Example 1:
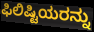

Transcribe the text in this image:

ಫಿಲಿಷ್ಟಿಯರನ್ನು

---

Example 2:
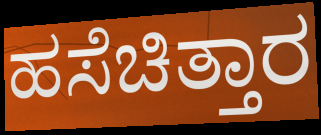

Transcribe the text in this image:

ಹಸೆಚಿತ್ತಾರ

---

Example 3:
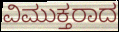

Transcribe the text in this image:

ವಿಮುಕ್ತರಾದ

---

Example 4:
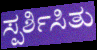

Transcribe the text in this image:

ಸ್ಪರ್ಶಿಸಿತು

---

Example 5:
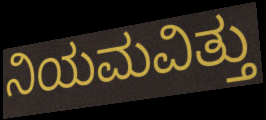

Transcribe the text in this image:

ನಿಯಮವಿತ್ತು